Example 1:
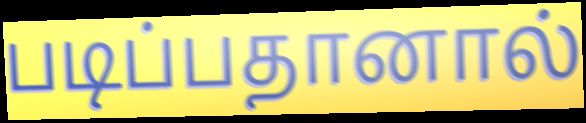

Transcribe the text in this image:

படிப்பதானால்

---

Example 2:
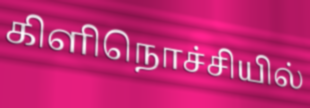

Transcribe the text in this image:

கிளிநொச்சியில்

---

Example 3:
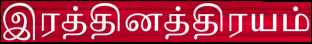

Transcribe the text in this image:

இரத்தினத்திரயம்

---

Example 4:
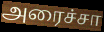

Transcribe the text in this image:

அரைச்சா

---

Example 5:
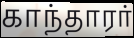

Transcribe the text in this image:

காந்தாரர்